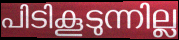
പിടികൂടുന്നില്ല